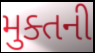
મુક્તની